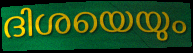
ദിശയെയും